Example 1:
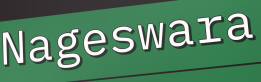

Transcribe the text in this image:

Nageswara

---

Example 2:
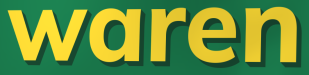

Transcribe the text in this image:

waren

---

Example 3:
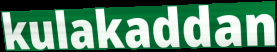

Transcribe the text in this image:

kulakaddan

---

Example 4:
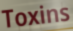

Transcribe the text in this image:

Toxins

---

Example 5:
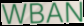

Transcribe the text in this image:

WBAN